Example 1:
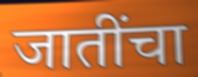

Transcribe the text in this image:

जातींचा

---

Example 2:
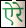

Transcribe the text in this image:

ऐरे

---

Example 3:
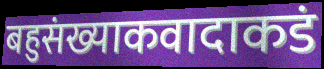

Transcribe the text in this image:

बहुसंख्याकवादाकडं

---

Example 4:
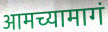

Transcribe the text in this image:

आमच्यामागं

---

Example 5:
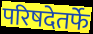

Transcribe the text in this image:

परिषदेतर्फे